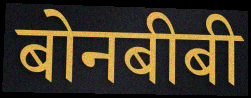
बोनबीबी